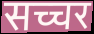
सच्चर